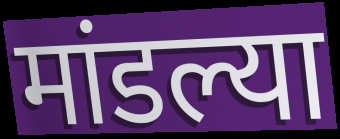
मांडल्या